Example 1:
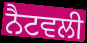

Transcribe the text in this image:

ਨੈਟਵਲੀ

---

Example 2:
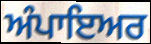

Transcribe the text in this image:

ਅੰਪਾਇਅਰ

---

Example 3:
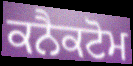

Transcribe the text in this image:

ਕਨੈਕਟੋਮ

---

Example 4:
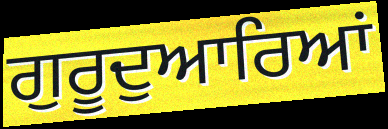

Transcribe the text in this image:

ਗੁਰੂਦੁਆਰਿਆਂ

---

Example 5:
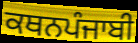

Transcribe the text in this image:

ਕਥਨਪੰਜਾਬੀ